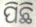
ପିଛି